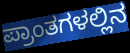
ಪ್ರಾಂತಗಳಲ್ಲಿನ